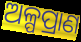
ଅଳ୍ପପ୍ରାଣ